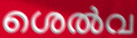
ശെൽവ